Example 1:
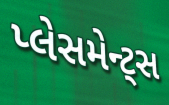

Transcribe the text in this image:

પ્લેસમેન્ટ્સ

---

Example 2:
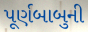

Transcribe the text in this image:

પૂર્ણબાબુની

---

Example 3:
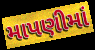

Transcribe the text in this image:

માપણીમાં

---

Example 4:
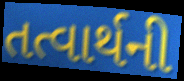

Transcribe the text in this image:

તત્વાર્થની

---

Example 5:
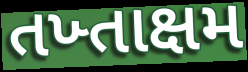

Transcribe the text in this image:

તખ્તાક્ષમ